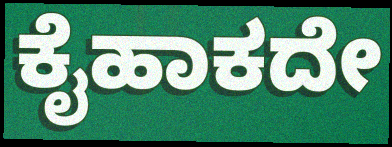
ಕೈಹಾಕದೇ